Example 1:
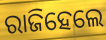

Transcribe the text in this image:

ରାଜିହେଲେ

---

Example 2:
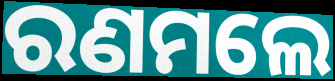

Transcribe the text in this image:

ରଣମଲେ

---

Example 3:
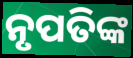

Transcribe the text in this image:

ନୃପତିଙ୍କ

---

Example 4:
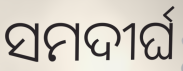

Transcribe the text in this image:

ସମଦୀର୍ଘ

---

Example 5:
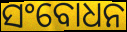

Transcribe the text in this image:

ସଂବୋଧନ